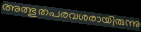
അത്ഭുതപരവശരായിരുന്നു